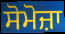
ਸੋਮੋਜ਼ਾ